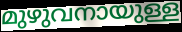
മുഴുവനായുള്ള